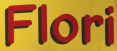
Flori